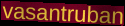
vasantruban